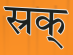
स्रक्